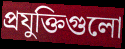
প্রযুক্তিগুলো